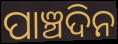
ପାଞ୍ଚଦିନ